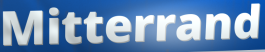
Mitterrand